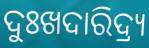
ଦୁଃଖଦାରିଦ୍ର୍ୟ